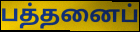
பத்தனைப்